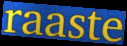
raaste